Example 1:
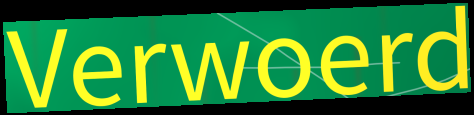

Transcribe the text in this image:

Verwoerd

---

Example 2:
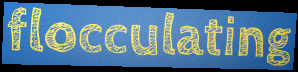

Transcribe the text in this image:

flocculating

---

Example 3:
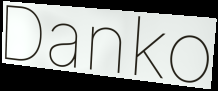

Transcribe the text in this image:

Danko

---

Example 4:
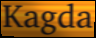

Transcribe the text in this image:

Kagda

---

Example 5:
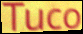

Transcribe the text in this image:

Tuco